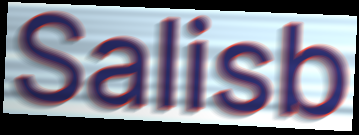
Salisb